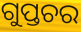
ଗୁପ୍ତଚର